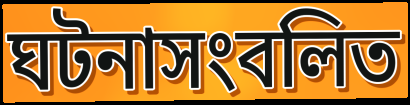
ঘটনাসংবলিত